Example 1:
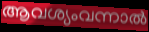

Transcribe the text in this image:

ആവശ്യംവന്നാൽ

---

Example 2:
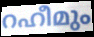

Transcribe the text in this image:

റഹീമും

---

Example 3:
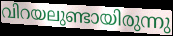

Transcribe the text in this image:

വിറയലുണ്ടായിരുന്നു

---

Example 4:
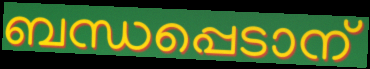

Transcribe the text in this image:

ബന്ധപ്പെടാന്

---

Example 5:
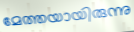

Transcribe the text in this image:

മേത്തയായിരുന്നു